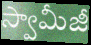
స్వామీజీ